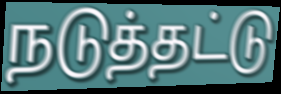
நடுத்தட்டு